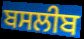
ਬਸਲੀਬ